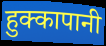
हुक्कापानी